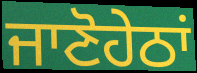
ਜਾਣੋਹੇਠਾਂ